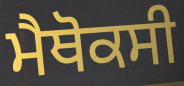
ਮੈਥੋਕਸੀ